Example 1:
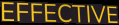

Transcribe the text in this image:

EFFECTIVE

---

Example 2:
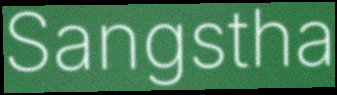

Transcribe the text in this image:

Sangstha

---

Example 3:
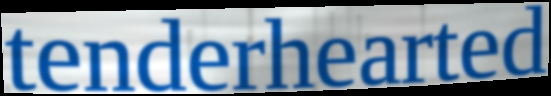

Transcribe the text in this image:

tenderhearted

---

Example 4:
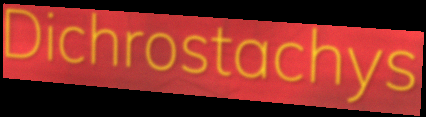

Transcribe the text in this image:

Dichrostachys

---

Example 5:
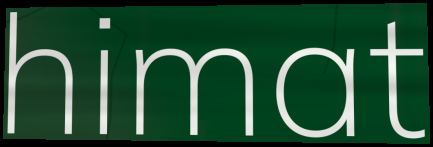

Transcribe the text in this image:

himat